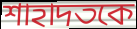
শাহাদতকে